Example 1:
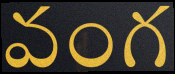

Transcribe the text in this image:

వంగ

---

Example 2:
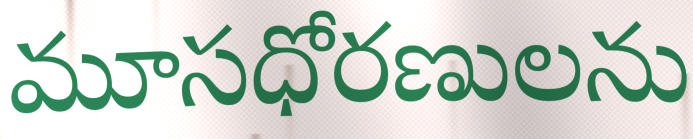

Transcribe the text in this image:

మూసధోరణులను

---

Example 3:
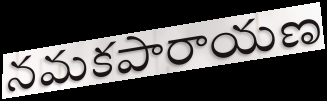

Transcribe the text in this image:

నమకపారాయణ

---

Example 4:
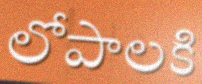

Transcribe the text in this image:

లోపాలకి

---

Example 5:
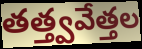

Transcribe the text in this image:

తత్త్వవేత్తల